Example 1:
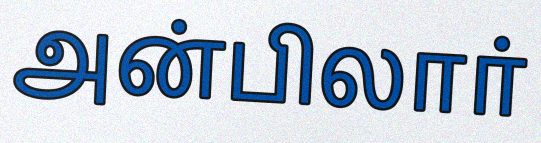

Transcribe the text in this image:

அன்பிலார்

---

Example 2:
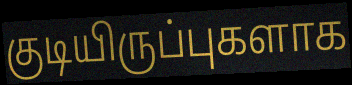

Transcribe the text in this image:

குடியிருப்புகளாக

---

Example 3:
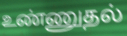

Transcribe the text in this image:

உண்ணுதல்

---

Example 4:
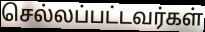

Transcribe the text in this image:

செல்லப்பட்டவர்கள்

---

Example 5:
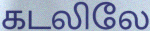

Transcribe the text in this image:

கடலிலே